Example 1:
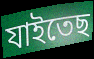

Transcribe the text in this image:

যাইতেছ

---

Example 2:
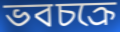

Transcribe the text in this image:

ভবচক্রে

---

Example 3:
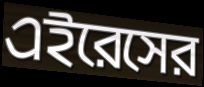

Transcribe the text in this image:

এইরেসের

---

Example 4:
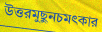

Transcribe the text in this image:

উত্তরমুছুনচমৎকার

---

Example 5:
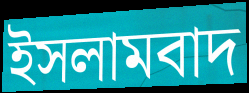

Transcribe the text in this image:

ইসলামবাদ